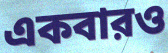
একবারও